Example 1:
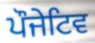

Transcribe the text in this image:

ਪੌਜੇਟਿਵ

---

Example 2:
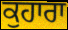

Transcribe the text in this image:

ਕੁਹਾਰਾ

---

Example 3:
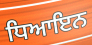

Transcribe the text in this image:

ਧਿਆਇਨ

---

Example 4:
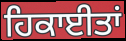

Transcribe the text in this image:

ਹਿਕਾਈਤਾਂ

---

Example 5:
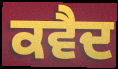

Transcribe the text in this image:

ਕਵੈਦ